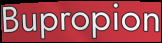
Bupropion